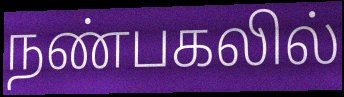
நண்பகலில்